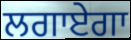
ਲਗਾਏਗਾ